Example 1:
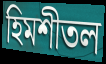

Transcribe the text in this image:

হিমশীতল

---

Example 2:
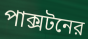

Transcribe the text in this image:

পাক্সটনের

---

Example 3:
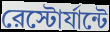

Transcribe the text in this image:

রেস্টোর্যান্টে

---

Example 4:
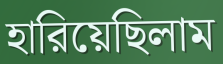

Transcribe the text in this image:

হারিয়েছিলাম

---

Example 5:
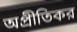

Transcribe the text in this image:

অপ্রীতিকর